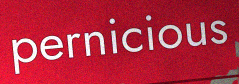
pernicious